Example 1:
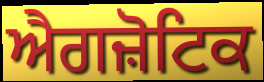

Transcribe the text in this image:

ਐਗਜ਼ੋਟਿਕ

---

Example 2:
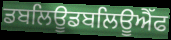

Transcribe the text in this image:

ਡਬਲਿਊਡਬਲਿਊਐੱਫ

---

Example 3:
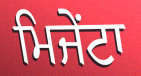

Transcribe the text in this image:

ਮਿਜੇਂਟਾ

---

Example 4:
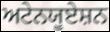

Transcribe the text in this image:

ਅਟੇਨਯੂਏਸ਼ਨ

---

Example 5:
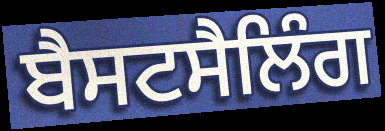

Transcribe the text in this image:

ਬੈਸਟਸੈਲਿੰਗ